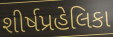
શીર્ષપ્રહેલિકા